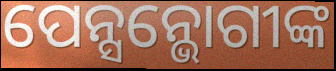
ପେନ୍ସନ୍ଭୋଗୀଙ୍କ